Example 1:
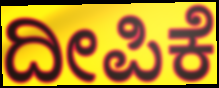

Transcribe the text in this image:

ದೀಪಿಕೆ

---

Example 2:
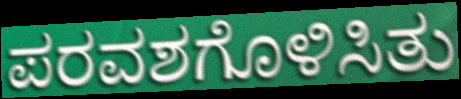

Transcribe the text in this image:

ಪರವಶಗೊಳಿಸಿತು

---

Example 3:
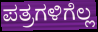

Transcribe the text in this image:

ಪತ್ರಗಳಿಗೆಲ್ಲ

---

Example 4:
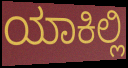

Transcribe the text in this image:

ಯಾಕಿಲ್ಲಿ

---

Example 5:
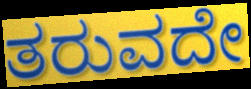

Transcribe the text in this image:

ತರುವದೇ